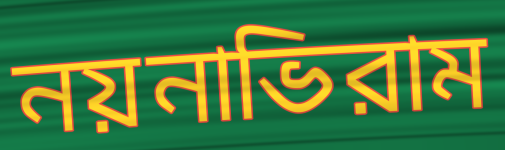
নয়নাভিরাম